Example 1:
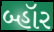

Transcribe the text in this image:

બ્હૉર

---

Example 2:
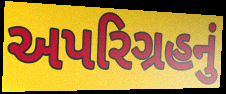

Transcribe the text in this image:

અપરિગ્રહનું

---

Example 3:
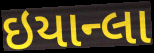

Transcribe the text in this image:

ઇયાન્લા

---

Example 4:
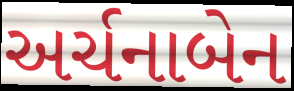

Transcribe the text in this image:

અર્ચનાબેન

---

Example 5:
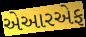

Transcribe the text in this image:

એઆરએફ